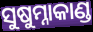
ସୁଷୁମ୍ନାକାଣ୍ଡ